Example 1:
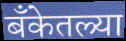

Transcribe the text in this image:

बँकेतल्या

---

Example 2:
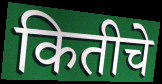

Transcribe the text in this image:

कितीचे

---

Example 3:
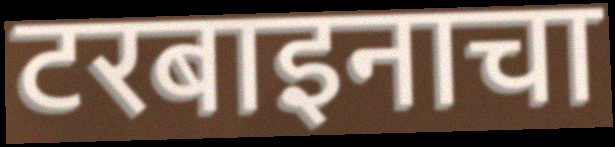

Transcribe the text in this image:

टरबाइनाचा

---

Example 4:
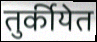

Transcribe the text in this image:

तुर्कीयेत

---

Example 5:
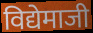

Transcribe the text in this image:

विद्येमाजी